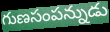
గుణసంపన్నుడు